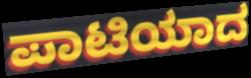
ಪಾಟಿಯಾದ